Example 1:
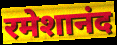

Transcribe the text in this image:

रमेशानंद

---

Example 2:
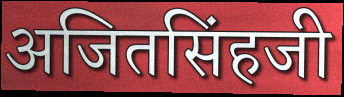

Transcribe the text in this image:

अजितसिंहजी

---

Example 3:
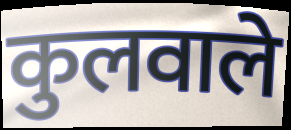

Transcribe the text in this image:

कुलवाले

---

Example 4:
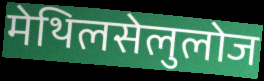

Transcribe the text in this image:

मेथिलसेलुलोज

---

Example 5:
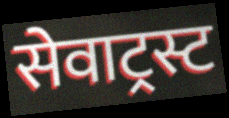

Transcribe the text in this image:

सेवाट्रस्ट